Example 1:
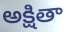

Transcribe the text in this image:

అక్షితా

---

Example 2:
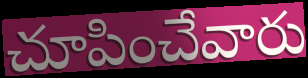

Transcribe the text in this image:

చూపించేవారు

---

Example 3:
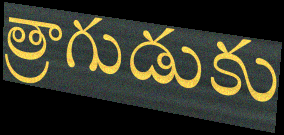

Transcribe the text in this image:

త్రాగుడుకు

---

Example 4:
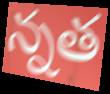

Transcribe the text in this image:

న్నత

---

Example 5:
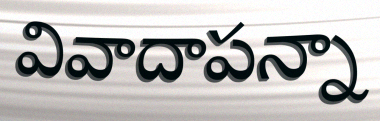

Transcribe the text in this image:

వివాదాపన్నా